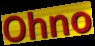
Ohno